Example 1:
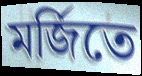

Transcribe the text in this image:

মর্জিতে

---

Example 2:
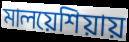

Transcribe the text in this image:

মালয়েশিয়ায়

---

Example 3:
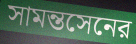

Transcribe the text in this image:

সামন্তসেনের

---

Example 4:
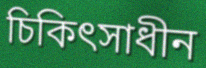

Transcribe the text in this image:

চিকিৎসাধীন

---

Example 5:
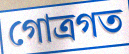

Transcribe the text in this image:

গোত্রগত